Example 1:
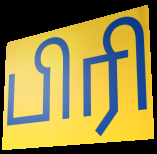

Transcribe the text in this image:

பிரி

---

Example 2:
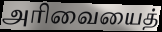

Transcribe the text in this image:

அரிவையைத்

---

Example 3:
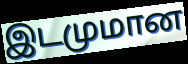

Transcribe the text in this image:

இடமுமான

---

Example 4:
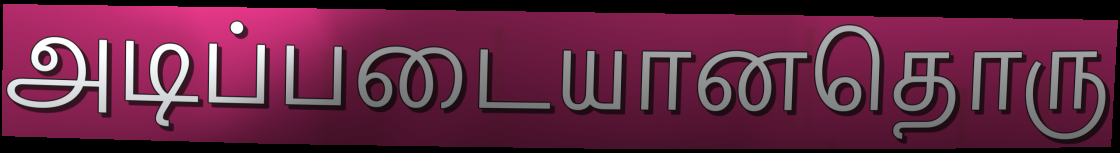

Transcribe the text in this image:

அடிப்படையானதொரு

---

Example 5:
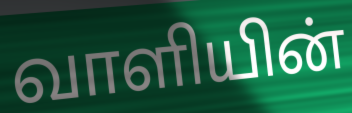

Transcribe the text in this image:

வாளியின்